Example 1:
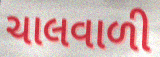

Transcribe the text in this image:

ચાલવાળી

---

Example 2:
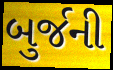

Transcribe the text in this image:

બુર્જની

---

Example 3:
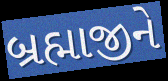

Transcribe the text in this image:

બ્રહ્માજીને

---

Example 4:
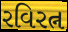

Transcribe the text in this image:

રવિરત્ન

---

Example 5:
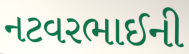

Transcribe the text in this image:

નટવરભાઈની